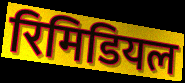
रिमिडियल